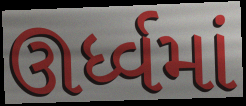
ઊર્ધ્વમાં